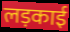
लड़काई